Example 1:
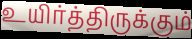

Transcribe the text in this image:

உயிர்த்திருக்கும்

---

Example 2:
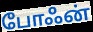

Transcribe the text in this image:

போஃன்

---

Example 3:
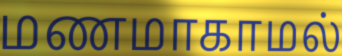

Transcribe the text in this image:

மணமாகாமல்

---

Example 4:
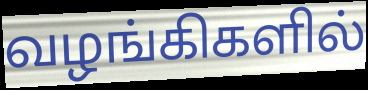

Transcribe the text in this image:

வழங்கிகளில்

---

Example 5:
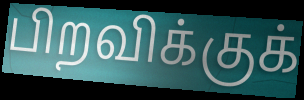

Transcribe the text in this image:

பிறவிக்குக்